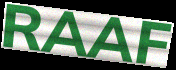
RAAF